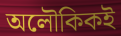
অলৌকিকই